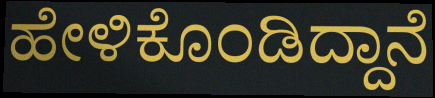
ಹೇಳಿಕೊಂಡಿದ್ದಾನೆ